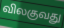
விலகுவது